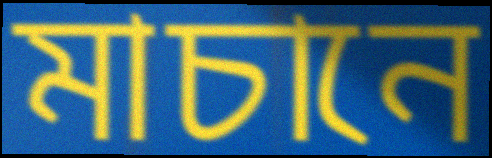
মাচানে